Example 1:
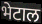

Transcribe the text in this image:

भेटाल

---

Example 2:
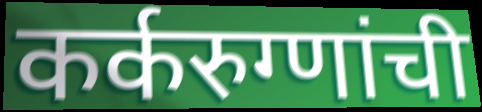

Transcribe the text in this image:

कर्करुग्णांची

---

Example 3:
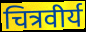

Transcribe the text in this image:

चित्रवीर्य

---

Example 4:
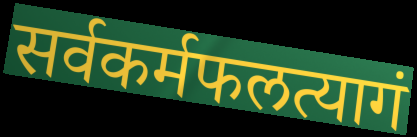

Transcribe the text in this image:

सर्वकर्मफलत्यागं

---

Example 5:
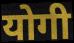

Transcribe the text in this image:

योगी